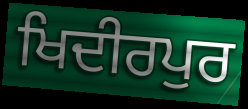
ਖਿਦੀਰਪੁਰ